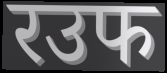
रउफ